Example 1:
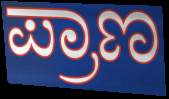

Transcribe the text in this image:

ಪ್ರಾಣ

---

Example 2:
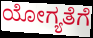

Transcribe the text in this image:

ಯೋಗ್ಯತೆಗೆ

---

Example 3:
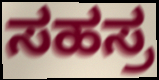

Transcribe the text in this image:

ಸಹಸ್ರ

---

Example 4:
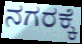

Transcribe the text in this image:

ನಗರಕ್ಕೆ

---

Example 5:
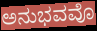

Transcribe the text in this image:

ಅನುಭವವೊ